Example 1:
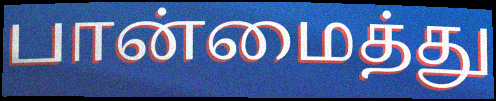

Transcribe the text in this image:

பான்மைத்து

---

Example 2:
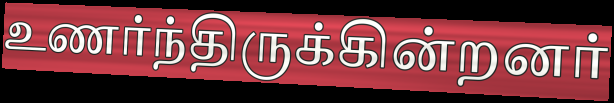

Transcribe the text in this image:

உணர்ந்திருக்கின்றனர்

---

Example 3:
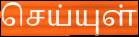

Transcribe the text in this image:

செய்யுள்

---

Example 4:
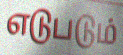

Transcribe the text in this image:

எடுபடும்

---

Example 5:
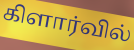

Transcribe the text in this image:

கிளார்வில்